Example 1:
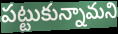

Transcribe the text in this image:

పట్టుకున్నామని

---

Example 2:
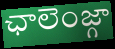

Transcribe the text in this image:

ఛాలెంజ్గా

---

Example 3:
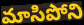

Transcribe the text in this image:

మాసిపోని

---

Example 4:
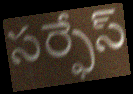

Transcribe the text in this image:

సర్ఫేస్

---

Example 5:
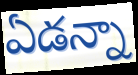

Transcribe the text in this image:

ఏడన్నా